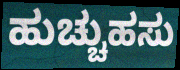
ಹುಚ್ಚುಹಸು